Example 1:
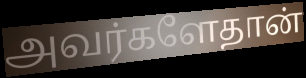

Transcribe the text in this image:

அவர்களேதான்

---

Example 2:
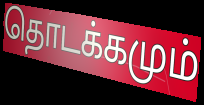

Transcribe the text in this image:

தொடக்கமும்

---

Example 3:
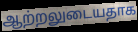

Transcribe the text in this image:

ஆற்றலுடையதாக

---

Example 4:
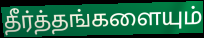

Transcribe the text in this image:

தீர்த்தங்களையும்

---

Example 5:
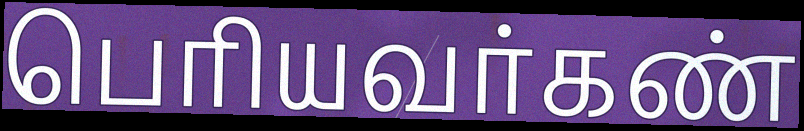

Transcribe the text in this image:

பெரியவர்கண்